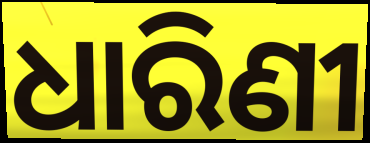
ଧାରିଣୀ